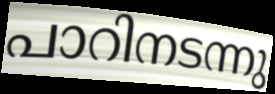
പാറിനടന്നു